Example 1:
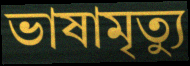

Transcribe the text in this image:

ভাষামৃত্যু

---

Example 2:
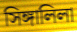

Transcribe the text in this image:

সিঙ্গালিলা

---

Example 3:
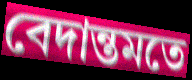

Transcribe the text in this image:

বেদান্তমতে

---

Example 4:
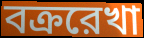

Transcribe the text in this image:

বক্ররেখা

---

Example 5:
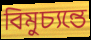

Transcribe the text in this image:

বিমুচ্যন্তে